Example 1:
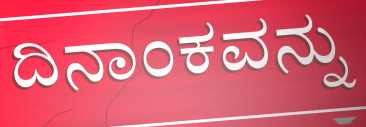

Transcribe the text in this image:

ದಿನಾಂಕವನ್ನು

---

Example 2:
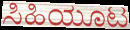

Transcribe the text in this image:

ಸಿಹಿಯೂಟ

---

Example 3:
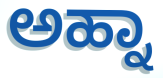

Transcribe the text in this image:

ಅಹ್ನಾ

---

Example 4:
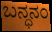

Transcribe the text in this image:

ಬನ್ಧನಂ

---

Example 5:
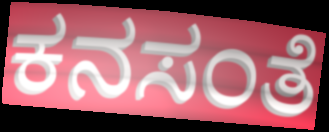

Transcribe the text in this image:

ಕನಸಂತೆ